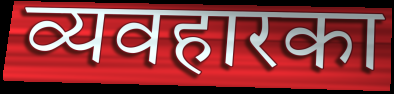
व्यवहारका